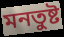
মনতুষ্ট